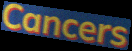
Cancers